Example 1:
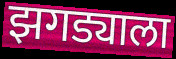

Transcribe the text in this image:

झगड्याला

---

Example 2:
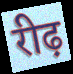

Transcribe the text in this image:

रीढ़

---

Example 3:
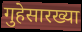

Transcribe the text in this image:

गुहेसारख्या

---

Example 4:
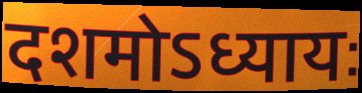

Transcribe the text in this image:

दशमोऽध्यायः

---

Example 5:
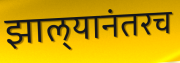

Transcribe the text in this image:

झाल्यानंतरच